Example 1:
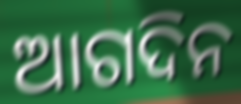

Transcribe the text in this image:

ଆଗଦିନ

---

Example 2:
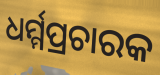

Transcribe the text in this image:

ଧର୍ମ୍ମପ୍ରଚାରକ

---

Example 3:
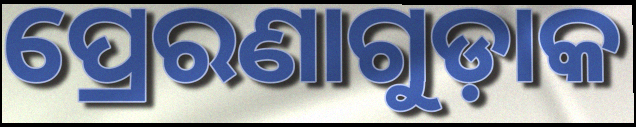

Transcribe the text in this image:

ପ୍ରେରଣାଗୁଡ଼ାକ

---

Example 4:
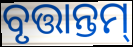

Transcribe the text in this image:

ବୃତ୍ତାନ୍ତମ୍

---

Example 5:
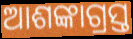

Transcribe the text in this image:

ଆଶଙ୍କାଗ୍ରସ୍ତ